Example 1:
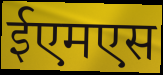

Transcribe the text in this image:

ईएमएस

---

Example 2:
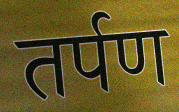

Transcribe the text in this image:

तर्पण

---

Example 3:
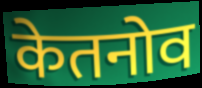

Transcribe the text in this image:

केतनोव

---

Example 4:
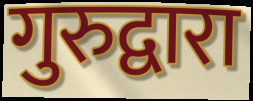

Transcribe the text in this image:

गुरुद्वारा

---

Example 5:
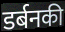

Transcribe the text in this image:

डर्बनकी